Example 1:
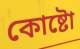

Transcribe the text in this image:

কোষ্টো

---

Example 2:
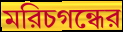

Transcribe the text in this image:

মরিচগন্ধের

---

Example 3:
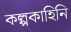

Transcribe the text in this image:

কল্পকাহিনি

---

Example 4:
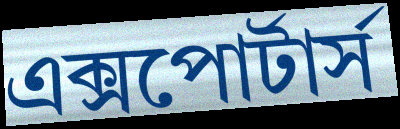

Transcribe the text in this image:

এক্সপোর্টার্স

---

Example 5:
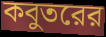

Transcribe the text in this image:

কবুতরের